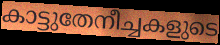
കാട്ടുതേനീച്ചകളുടെ